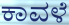
ಕಾವಳೆ